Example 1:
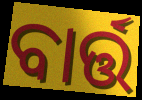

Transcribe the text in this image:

ବାର୍ତ୍ତ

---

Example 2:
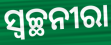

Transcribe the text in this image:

ସ୍ବଚ୍ଛନୀରା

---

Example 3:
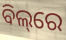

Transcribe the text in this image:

ବିଲ୍‌ରେ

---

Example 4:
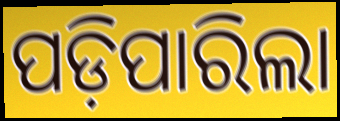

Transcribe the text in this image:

ପଡ଼ିପାରିଲା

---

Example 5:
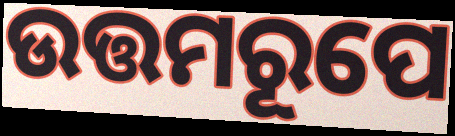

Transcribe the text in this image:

ଉତ୍ତମରୂପେ